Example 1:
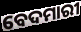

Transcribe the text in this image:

ବେଦମାରୀ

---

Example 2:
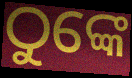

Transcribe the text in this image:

ଠୁଙ୍କେ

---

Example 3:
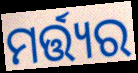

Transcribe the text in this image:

ମର୍ତ୍ତ୍ୟର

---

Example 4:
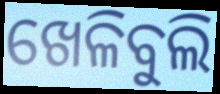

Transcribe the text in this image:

ଖେଳିବୁଲି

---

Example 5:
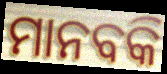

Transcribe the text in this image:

ମାନବକି